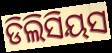
ଡିଲିସିୟସ